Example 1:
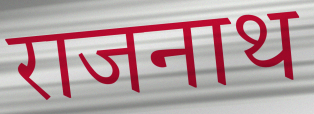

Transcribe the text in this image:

राजनाथ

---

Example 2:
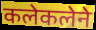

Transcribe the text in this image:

कलेकलेने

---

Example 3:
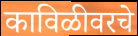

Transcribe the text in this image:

काविळीवरचे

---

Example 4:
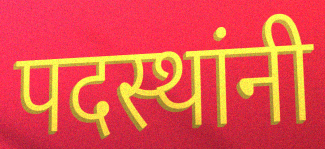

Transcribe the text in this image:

पदस्थांनी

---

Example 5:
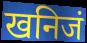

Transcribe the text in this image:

खनिजं